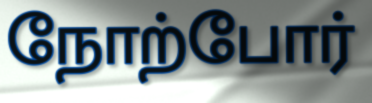
நோற்போர்